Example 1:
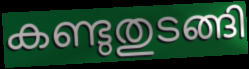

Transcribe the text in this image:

കണ്ടുതുടങ്ങി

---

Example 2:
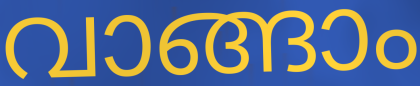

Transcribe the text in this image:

വാങ്ങാം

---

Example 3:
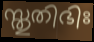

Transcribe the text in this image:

സ്തുതിഭിഃ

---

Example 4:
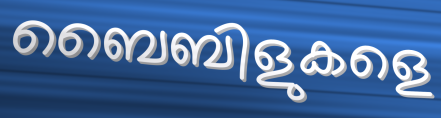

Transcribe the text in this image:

ബൈബിളുകളെ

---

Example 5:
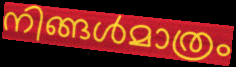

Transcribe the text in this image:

നിങ്ങൾമാത്രം